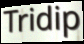
Tridip